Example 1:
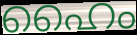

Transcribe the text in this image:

ഹൈം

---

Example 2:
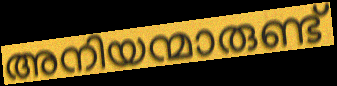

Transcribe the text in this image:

അനിയന്മാരുണ്ട്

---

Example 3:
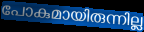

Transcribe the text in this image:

പോകുമായിരുന്നില്ല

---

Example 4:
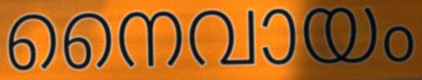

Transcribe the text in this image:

നൈവായം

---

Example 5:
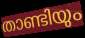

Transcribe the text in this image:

താണ്ടിയും